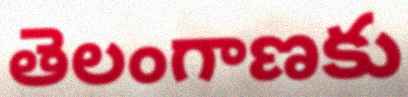
తెలంగాణకు